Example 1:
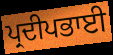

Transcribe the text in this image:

ਪ੍ਰਦੀਪਭਾਈ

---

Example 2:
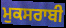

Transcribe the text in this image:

ਮੁਕਸਰਾਬੀ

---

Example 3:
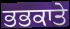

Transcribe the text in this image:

ਭਭਕਾਤੇ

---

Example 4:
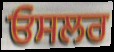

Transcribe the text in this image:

ਓਸਲਰ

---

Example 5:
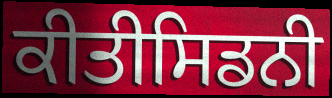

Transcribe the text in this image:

ਕੀਤੀਸਿਡਨੀ